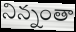
నిన్నంతా